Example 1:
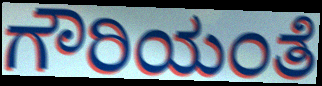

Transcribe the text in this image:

ಗೌರಿಯಂತೆ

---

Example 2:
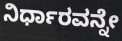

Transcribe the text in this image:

ನಿರ್ಧಾರವನ್ನೇ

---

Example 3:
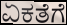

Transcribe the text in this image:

ಏಕತೆಗೆ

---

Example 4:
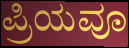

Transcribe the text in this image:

ಪ್ರಿಯವೂ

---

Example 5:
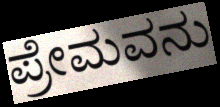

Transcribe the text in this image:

ಪ್ರೇಮವನು